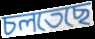
চলতেছে